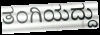
ತಂಗಿಯದ್ದು